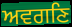
ਅਵਗਣਿ